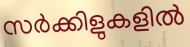
സർക്കിളുകളിൽ